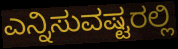
ಎನ್ನಿಸುವಷ್ಟರಲ್ಲಿ